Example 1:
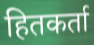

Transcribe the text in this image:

हितकर्ता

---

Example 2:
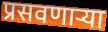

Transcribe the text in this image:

प्रसवणाऱ्या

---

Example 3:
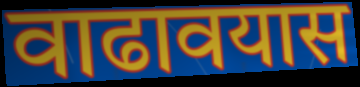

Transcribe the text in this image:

वाढावयास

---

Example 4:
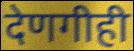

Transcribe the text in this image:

देणगीही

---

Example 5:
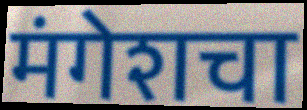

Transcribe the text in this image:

मंगेशचा